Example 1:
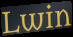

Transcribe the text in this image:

Lwin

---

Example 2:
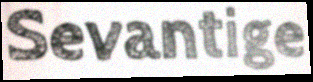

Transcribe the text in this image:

Sevantige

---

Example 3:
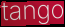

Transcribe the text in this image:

tango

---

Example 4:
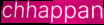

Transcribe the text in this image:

chhappan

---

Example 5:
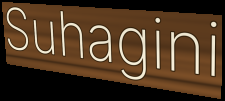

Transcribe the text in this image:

Suhagini